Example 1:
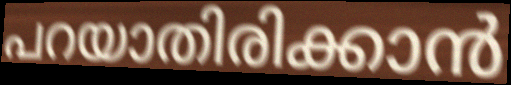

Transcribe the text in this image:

പറയാതിരിക്കാൻ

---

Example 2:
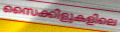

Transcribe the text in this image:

സൈക്കിളുകളിലെ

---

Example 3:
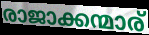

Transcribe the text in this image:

രാജാക്കന്മാര്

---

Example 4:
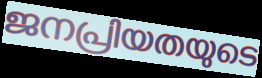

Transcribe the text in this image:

ജനപ്രിയതയുടെ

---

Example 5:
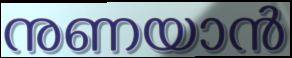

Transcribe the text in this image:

നുണയാൻ